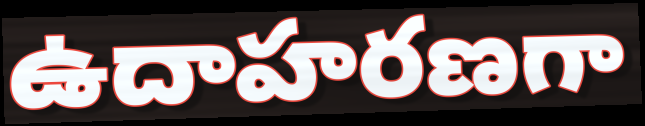
ఉదాహరణగా